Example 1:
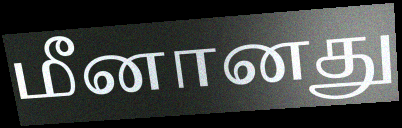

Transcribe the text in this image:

மீனானது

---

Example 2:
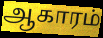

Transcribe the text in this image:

ஆகாரம்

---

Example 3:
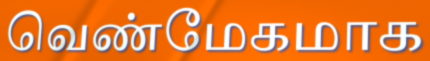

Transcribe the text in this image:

வெண்மேகமாக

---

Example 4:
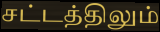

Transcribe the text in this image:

சட்டத்திலும்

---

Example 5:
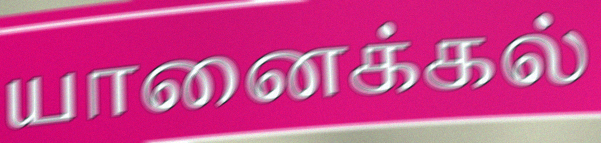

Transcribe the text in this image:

யானைக்கல்